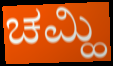
ಚಮ್ಹಿ